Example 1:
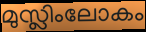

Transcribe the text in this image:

മുസ്ലിംലോകം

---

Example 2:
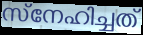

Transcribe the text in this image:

സ്‌നേഹിച്ചത്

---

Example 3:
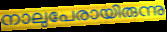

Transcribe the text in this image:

നാലുപേരായിരുന്നു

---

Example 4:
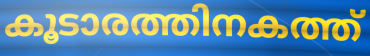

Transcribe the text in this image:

കൂടാരത്തിനകത്ത്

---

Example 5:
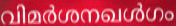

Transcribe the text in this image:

വിമർശനഖൾഗം